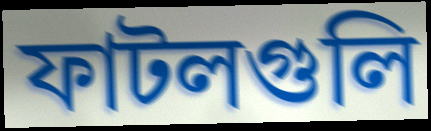
ফাটলগুলি